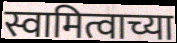
स्वामित्वाच्या